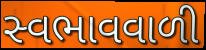
સ્વભાવવાળી